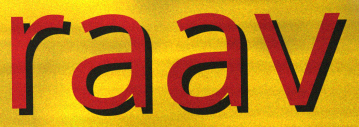
raav